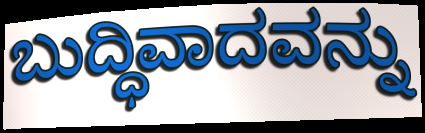
ಬುದ್ಧಿವಾದವನ್ನು